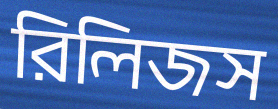
রিলিজস